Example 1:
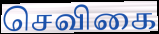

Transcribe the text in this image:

செவிகை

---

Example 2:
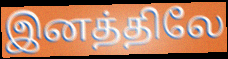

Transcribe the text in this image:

இனத்திலே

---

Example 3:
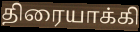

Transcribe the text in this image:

திரையாக்கி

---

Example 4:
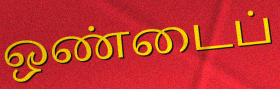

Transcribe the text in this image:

ஒண்டைப்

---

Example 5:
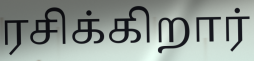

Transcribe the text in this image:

ரசிக்கிறார்